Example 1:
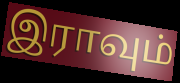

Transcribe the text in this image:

இராவும்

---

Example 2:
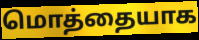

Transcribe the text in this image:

மொத்தையாக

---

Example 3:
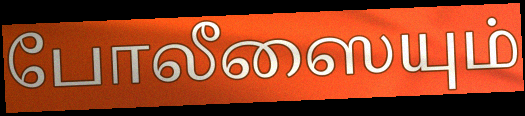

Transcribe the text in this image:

போலீஸையும்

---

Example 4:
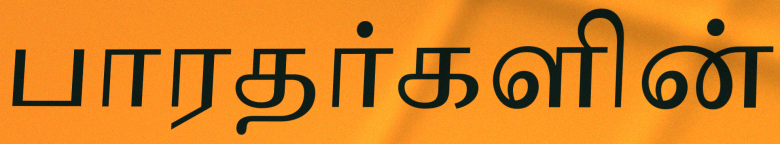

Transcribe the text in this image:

பாரதர்களின்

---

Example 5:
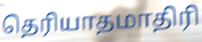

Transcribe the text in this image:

தெரியாதமாதிரி